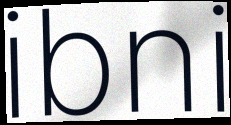
ibni